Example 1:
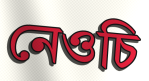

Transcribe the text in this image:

নেওচি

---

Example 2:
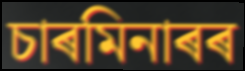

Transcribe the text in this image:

চাৰমিনাৰৰ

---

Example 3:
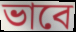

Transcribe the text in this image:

ভাবে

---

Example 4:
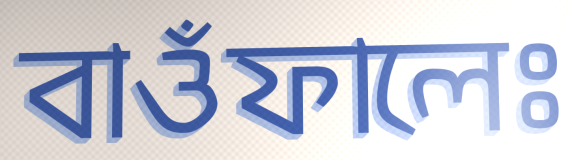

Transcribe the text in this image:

বাওঁফালেঃ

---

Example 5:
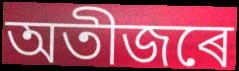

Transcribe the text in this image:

অতীজৰে